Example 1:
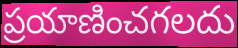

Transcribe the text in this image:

ప్రయాణించగలదు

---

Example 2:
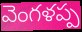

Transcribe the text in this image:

వెంగళప్ప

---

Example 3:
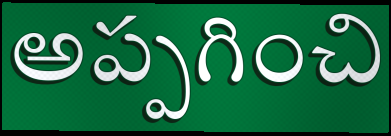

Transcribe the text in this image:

అప్పగించి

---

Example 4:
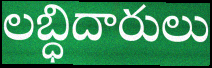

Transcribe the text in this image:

లబ్ధిదారులు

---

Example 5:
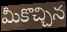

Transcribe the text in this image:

మీకొచ్చిన